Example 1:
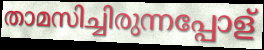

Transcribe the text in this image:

താമസിച്ചിരുന്നപ്പോള്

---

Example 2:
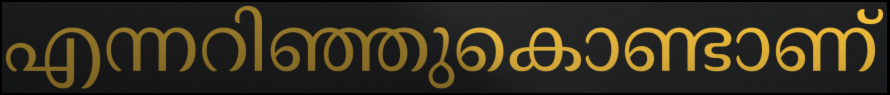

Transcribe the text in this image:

എന്നറിഞ്ഞുകൊണ്ടാണ്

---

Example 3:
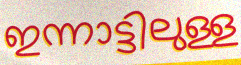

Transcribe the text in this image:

ഇന്നാട്ടിലുള്ള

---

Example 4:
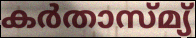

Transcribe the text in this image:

കർതാസ്മ്യ്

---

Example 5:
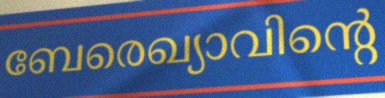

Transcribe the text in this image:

ബേരെഖ്യാവിന്റെ